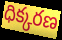
ధిక్కరణ